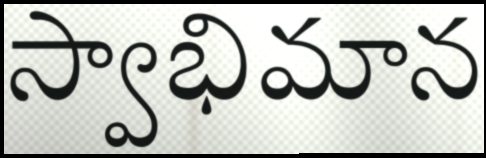
స్వాభిమాన